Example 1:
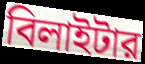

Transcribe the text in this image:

বিলাইটার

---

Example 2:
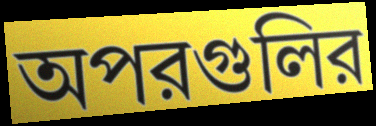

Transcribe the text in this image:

অপরগুলির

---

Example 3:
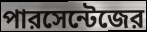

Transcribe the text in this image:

পারসেন্টেজের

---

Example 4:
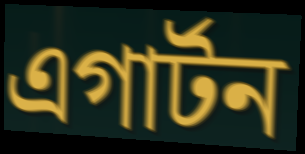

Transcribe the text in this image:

এগার্টন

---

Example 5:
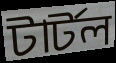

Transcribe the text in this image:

টার্টল